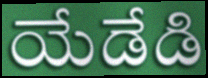
యేడేడి